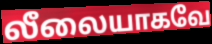
லீலையாகவே